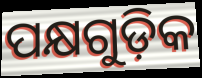
ପକ୍ଷଗୁଡ଼ିକ